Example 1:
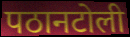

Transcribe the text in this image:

पठानटोली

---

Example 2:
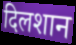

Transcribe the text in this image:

दिलशान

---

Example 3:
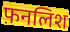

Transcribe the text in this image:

फ़नलिश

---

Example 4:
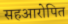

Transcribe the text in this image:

सहआरोपित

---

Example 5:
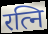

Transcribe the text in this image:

रत्नि